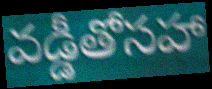
వడ్డీతోసహా